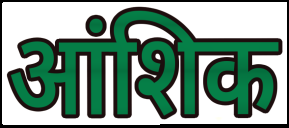
आंशिक